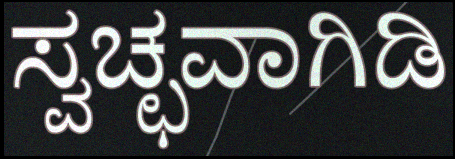
ಸ್ವಚ್ಛವಾಗಿಡಿ